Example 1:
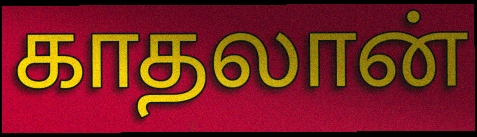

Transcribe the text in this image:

காதலான்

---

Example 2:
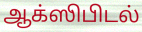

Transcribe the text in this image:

ஆக்ஸிபிடல்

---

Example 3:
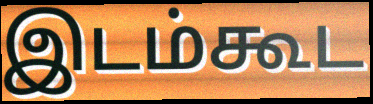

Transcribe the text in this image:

இடம்கூட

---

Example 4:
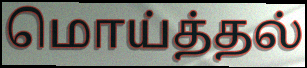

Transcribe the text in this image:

மொய்த்தல்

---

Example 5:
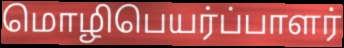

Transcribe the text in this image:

மொழிபெயர்ப்பாளர்